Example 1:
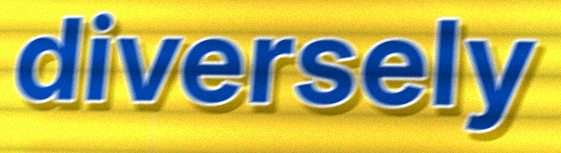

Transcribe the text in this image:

diversely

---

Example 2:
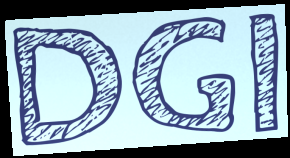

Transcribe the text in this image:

DGI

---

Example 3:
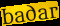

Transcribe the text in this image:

badar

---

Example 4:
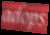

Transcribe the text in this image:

adops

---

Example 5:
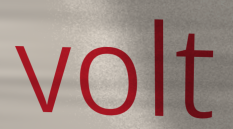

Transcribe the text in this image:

volt